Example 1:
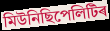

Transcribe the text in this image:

মিউনিছিপেলিটিৰ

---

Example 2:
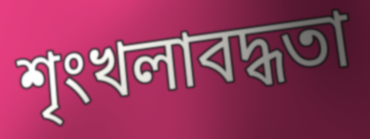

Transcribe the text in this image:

শৃংখলাবদ্ধতা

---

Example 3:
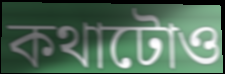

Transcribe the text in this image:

কথাটোও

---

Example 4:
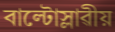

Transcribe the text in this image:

বাল্টোস্লাৱীয়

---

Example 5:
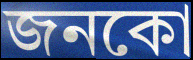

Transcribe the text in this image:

জনকো